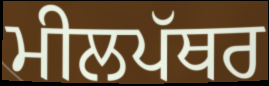
ਮੀਲਪੱਥਰ